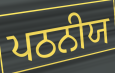
ਪਠਨੀਯ